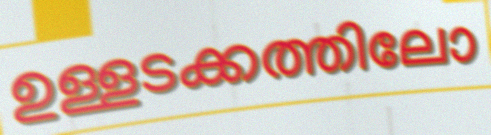
ഉള്ളടക്കത്തിലോ